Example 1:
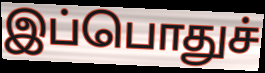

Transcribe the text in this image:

இப்பொதுச்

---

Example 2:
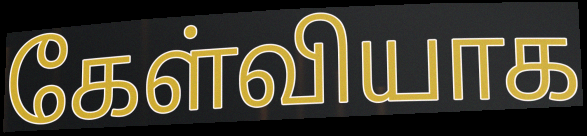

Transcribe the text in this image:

கேள்வியாக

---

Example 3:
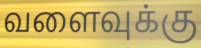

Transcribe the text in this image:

வளைவுக்கு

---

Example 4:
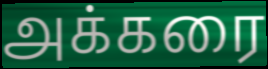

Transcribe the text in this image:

அக்கரை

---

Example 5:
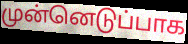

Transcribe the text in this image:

முன்னெடுப்பாக